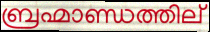
ബ്രഹ്മാണ്ഡത്തില്